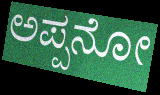
ಅಪ್ಪನೋ